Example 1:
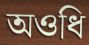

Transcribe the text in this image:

অওধি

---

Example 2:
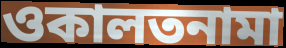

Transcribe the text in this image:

ওকালতনামা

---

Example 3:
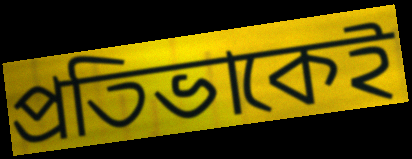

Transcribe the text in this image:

প্রতিভাকেই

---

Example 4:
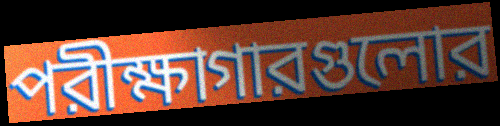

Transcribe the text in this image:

পরীক্ষাগারগুলোর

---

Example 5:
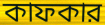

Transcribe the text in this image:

কাফকার